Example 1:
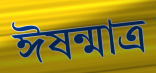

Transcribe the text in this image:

ঈষন্মাত্র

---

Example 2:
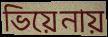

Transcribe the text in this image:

ভিয়েনায়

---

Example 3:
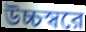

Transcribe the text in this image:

উচ্চস্বরে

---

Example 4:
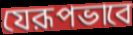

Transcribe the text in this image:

যেরূপভাবে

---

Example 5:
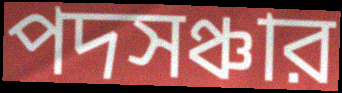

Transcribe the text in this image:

পদসঞ্চার